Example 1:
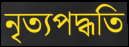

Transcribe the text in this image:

নৃত্যপদ্ধতি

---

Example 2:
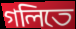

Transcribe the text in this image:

গলিতে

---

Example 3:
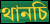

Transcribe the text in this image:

থানচি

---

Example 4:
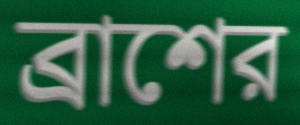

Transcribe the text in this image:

ব্রাশের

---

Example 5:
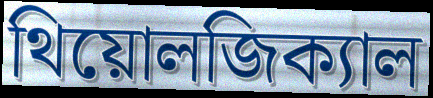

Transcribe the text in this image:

থিয়োলজিক্যাল